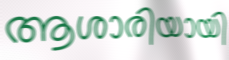
ആശാരിയായി